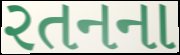
રતનના